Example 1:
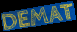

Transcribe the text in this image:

DEMAT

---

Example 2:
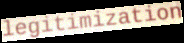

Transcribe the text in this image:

legitimization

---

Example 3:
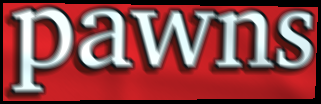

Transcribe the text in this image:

pawns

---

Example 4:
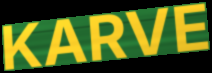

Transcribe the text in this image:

KARVE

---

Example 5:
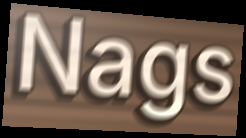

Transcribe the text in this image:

Nags